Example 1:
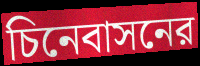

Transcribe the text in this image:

চিনেবাসনের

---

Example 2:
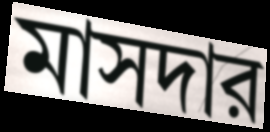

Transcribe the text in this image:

মাসদার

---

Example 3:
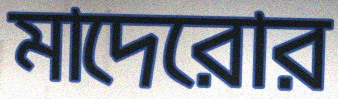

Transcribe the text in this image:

মাদেরোর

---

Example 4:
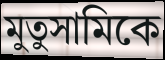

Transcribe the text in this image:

মুতুসামিকে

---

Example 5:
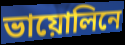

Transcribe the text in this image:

ভায়োলিনে